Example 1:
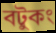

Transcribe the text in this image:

বটুকং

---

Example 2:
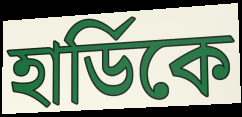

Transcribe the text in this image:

হার্ডিকে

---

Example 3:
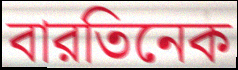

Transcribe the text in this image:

বারতিনেক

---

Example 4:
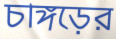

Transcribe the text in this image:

চাঙ্গড়ের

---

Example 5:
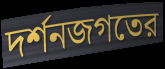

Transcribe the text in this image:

দর্শনজগতের